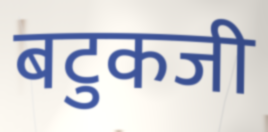
बटुकजी